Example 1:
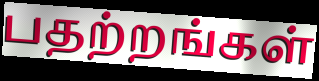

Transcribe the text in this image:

பதற்றங்கள்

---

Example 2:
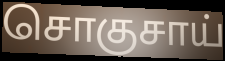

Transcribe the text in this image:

சொகுசாய்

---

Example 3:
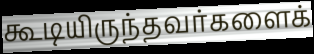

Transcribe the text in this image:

கூடியிருந்தவர்களைக்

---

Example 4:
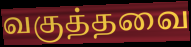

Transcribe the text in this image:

வகுத்தவை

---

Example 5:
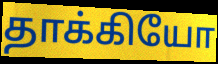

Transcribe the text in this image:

தாக்கியோ